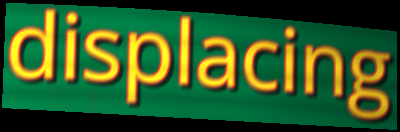
displacing